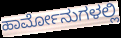
ಹಾರ್ಮೋನುಗಳಲ್ಲಿ